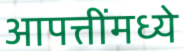
आपत्तींमध्ये